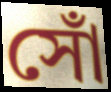
সোঁ